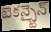
బెకన్స్టైన్